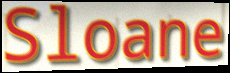
Sloane